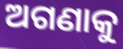
ଅଗଣାକୁ